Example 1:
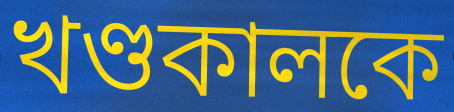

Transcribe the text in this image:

খণ্ডকালকে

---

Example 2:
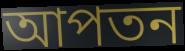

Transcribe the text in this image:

আপতন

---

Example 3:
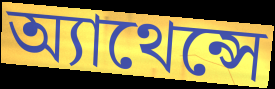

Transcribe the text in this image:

অ্যাথেন্সে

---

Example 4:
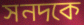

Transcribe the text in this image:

সনদকে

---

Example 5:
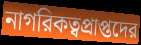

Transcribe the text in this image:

নাগরিকত্বপ্রাপ্তদের